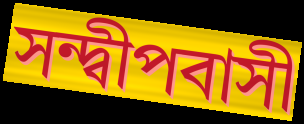
সন্দ্বীপবাসী